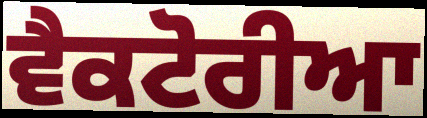
ਵੈਕਟੋਰੀਆ